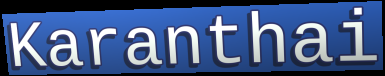
Karanthai